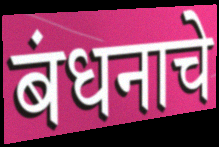
बंधनाचे